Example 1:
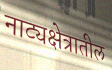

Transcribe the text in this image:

नाट्यक्षेत्रातील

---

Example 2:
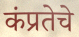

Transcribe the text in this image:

कंप्रतेचे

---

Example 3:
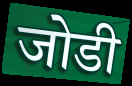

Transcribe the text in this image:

जोडी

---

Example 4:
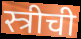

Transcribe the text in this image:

स्त्रीची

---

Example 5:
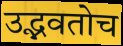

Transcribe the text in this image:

उद्भवतोच